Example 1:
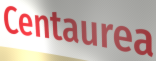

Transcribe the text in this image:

Centaurea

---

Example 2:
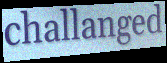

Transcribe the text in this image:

challanged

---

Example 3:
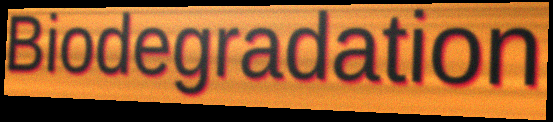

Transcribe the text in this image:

Biodegradation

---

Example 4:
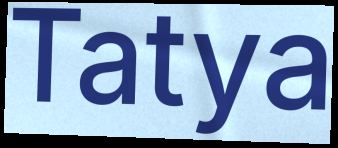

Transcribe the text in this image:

Tatya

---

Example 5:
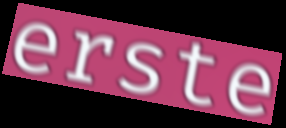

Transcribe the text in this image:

erste